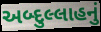
અબ્દુલ્લાહનું